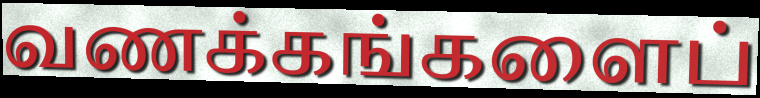
வணக்கங்களைப்